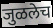
जुळलेच